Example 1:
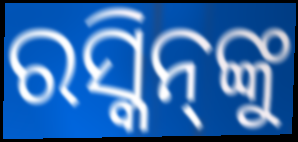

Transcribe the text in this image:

ରସ୍କିନ୍‌ଙ୍କୁ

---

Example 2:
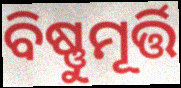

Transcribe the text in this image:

ବିଷ୍ଣୁମୂର୍ତ୍ତି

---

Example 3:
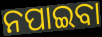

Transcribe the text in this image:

ନପାଇବା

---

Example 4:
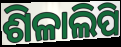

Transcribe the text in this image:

ଶିଳାଲିପି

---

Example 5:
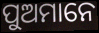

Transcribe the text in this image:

ପୁଅମାନେ